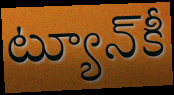
ట్యూన్‌కీ